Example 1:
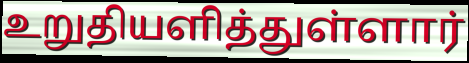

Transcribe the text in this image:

உறுதியளித்துள்ளார்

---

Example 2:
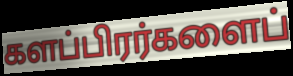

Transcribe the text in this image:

களப்பிரர்களைப்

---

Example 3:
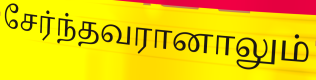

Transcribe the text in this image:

சேர்ந்தவரானாலும்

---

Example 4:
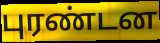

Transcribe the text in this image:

புரண்டன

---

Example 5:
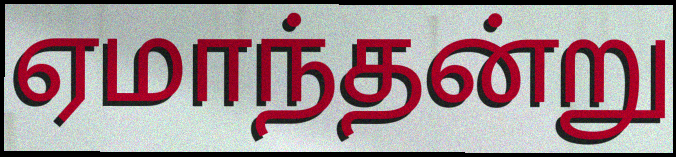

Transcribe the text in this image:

ஏமாந்தன்று